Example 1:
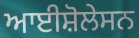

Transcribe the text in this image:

ਆਈਸ਼ੋਲੇਸਨ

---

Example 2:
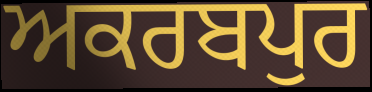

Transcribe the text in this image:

ਅਕਰਬਪੁਰ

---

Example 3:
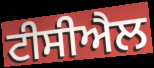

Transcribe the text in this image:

ਟੀਸੀਐਲ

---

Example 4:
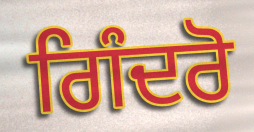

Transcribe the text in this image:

ਗਿੰਦਰੋ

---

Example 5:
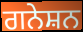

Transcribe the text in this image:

ਗਨੇਸ਼ਨ